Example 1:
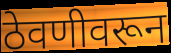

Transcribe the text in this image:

ठेवणीवरून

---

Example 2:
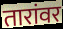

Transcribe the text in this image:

तारांवर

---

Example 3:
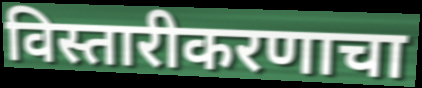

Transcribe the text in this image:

विस्तारीकरणाचा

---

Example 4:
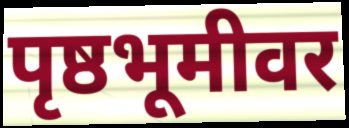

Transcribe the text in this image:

पृष्ठभूमीवर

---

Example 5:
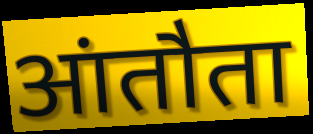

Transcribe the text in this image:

आंतौता